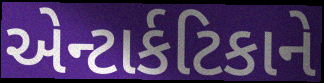
એન્ટાર્કટિકાને